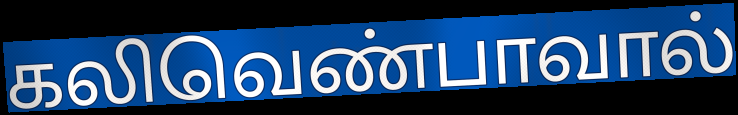
கலிவெண்பாவால்